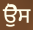
ਉੋਸ